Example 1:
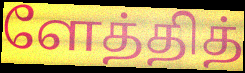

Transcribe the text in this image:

ளேத்தித்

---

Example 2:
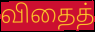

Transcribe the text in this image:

விதைத்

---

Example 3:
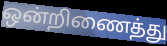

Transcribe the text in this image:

ஒன்றிணைத்து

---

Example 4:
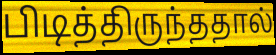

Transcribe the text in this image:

பிடித்திருந்ததால்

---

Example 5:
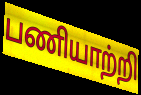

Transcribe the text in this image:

பணியாற்றி